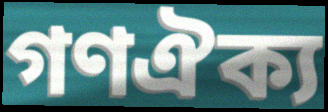
গণঐক্য